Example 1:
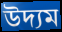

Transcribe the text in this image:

উদ্যম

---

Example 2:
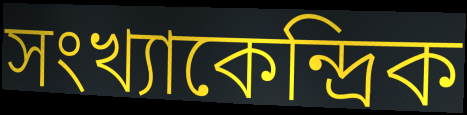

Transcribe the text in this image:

সংখ্যাকেন্দ্রিক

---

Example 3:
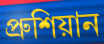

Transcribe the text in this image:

প্রুশিয়ান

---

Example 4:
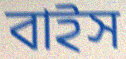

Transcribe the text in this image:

বাইস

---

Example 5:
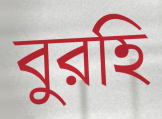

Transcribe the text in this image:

বুরহি